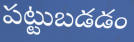
పట్టుబడడం